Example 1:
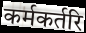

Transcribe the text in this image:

कर्मकर्तरि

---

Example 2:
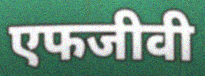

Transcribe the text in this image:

एफजीवी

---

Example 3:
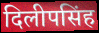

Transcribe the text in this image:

दिलीपसिंह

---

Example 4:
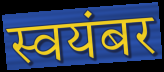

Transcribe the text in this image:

स्वयंबर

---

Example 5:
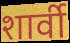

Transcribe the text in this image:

शार्वी